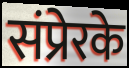
संप्रेरके